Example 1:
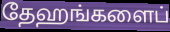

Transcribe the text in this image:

தேஹங்களைப்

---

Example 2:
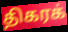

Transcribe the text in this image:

திகரக்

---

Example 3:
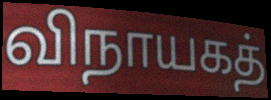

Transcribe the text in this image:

விநாயகத்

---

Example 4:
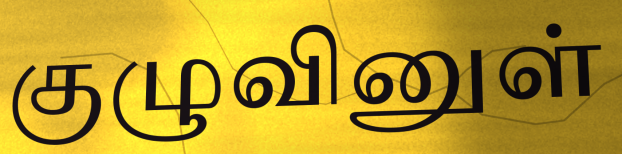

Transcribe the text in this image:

குழுவினுள்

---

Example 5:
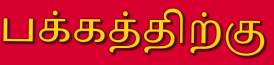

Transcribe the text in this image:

பக்கத்திற்கு